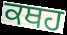
ਕਥਹ